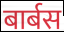
बार्बस